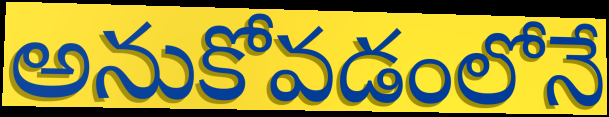
అనుకోవడంలోనే